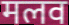
मलव